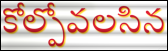
కోల్పోవలసిన